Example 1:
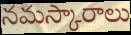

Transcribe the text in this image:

నమస్కారాలు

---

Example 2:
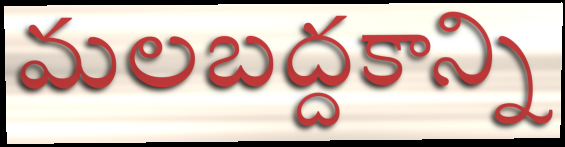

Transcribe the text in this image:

మలబద్దకాన్ని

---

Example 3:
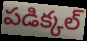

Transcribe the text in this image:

పడిక్కల్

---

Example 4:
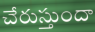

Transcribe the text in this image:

చేరుస్తుందా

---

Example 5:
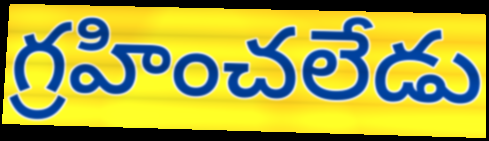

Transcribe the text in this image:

గ్రహించలేడు